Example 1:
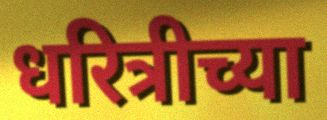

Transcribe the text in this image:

धरित्रीच्या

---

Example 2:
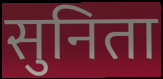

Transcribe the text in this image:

सुनिता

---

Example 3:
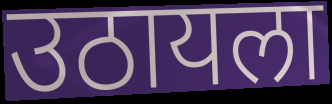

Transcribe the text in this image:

उठायला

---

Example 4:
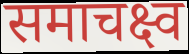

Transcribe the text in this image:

समाचक्ष्व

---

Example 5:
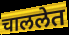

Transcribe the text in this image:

चाललेत